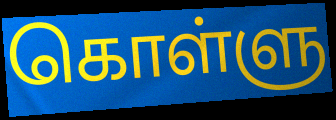
கொள்ளு